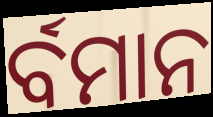
ର୍ବମାନ